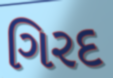
ગિરદ